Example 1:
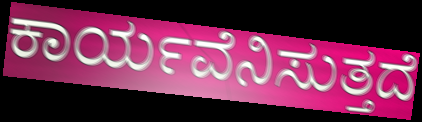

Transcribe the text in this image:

ಕಾರ್ಯವೆನಿಸುತ್ತದೆ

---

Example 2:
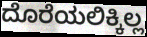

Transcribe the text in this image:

ದೊರೆಯಲಿಕ್ಕಿಲ್ಲ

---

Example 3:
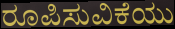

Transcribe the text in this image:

ರೂಪಿಸುವಿಕೆಯು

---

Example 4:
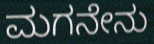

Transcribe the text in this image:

ಮಗನೇನು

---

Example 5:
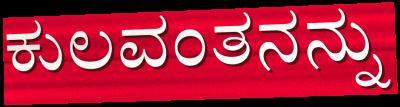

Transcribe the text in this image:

ಕುಲವಂತನನ್ನು